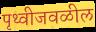
पृथ्वीजवळील